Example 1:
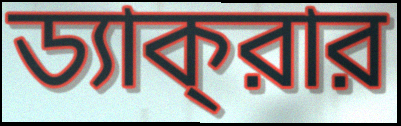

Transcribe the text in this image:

ড্যাক্‌রার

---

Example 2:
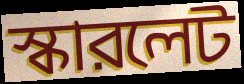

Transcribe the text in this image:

স্কারলেট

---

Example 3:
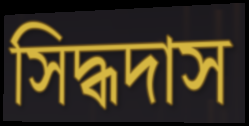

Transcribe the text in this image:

সিদ্ধদাস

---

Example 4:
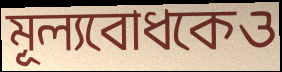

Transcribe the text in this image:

মূল্যবোধকেও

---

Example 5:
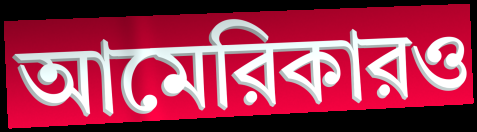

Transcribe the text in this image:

আমেরিকারও